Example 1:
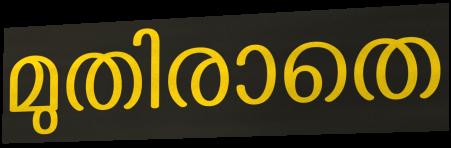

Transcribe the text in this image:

മുതിരാതെ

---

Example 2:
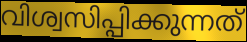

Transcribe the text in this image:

വിശ്വസിപ്പിക്കുന്നത്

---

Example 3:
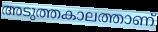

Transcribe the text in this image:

അടുത്തകാലത്താണ്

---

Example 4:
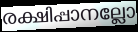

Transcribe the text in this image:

രക്ഷിപ്പാനല്ലോ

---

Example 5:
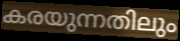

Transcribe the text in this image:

കരയുന്നതിലും